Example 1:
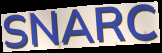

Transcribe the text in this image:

SNARC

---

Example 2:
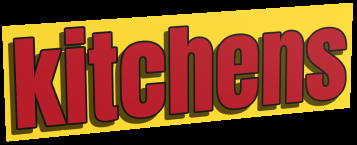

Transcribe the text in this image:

kitchens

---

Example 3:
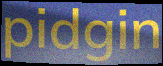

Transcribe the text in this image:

pidgin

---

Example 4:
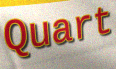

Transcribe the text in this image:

Quart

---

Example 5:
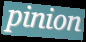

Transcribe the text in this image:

pinion